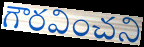
గౌరవించని